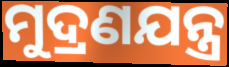
ମୁଦ୍ରଣଯନ୍ତ୍ର